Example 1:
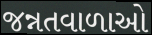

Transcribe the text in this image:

જન્નતવાળાઓ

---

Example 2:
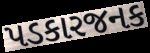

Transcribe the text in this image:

પડકારજનક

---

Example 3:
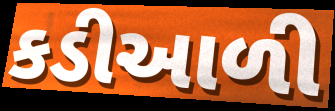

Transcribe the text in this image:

કડીઆળી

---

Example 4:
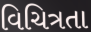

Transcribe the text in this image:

વિચિત્રતા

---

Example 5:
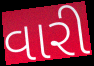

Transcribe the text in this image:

વારી